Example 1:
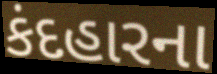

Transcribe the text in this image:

કંદહારના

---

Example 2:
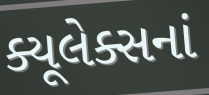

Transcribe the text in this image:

ક્યૂલેક્સનાં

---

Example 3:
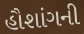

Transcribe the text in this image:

હૌશાંગની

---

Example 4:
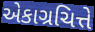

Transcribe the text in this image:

એકાગ્રચિત્તે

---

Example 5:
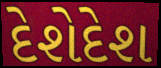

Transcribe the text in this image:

દેશેદેશ